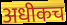
अधीकच